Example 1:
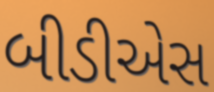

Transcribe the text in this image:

બીડીએસ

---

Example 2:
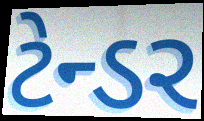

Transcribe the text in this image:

ટેન્ડર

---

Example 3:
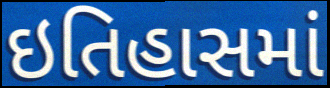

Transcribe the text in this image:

ઇતિહાસમાં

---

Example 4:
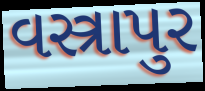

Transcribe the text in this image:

વસ્ત્રાપુર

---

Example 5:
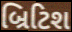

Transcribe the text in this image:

બ્રિટિશ